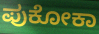
ಪುಕೋಕಾ